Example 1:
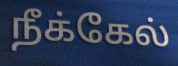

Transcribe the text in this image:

நீக்கேல்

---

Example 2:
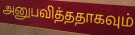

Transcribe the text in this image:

அனுபவித்ததாகவும்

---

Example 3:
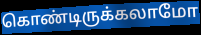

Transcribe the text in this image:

கொண்டிருக்கலாமோ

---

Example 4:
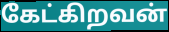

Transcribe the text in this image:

கேட்கிறவன்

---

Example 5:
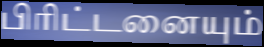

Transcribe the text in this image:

பிரிட்டனையும்